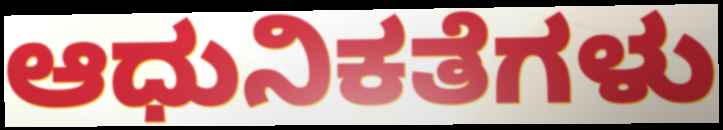
ಆಧುನಿಕತೆಗಳು